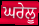
ਘਰੇਲੂ